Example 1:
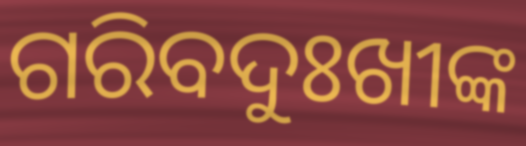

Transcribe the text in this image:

ଗରିବଦୁଃଖୀଙ୍କ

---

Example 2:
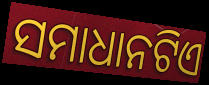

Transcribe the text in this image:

ସମାଧାନଟିଏ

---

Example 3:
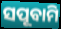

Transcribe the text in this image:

ସପୂବାମି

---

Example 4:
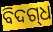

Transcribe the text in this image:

ବିଦଗ୍‍ଧ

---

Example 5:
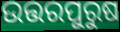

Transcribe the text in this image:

ଉତ୍ତରପୁରୁଷ